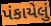
પંકાયેલું